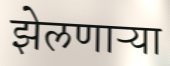
झेलणाऱ्या